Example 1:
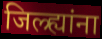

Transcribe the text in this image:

जिल्ह्यांना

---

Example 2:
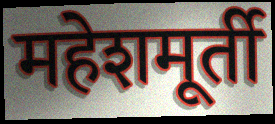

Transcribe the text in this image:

महेशमूर्ती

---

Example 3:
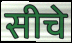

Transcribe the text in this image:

सीचे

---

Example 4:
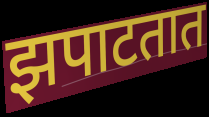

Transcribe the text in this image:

झपाटतात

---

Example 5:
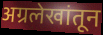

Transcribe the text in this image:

अग्रलेखांतून